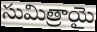
సుమిత్రాయై